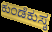
ಕುಂಡೆಕುಸ್ಕ